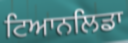
ਟਿਆਨਲਿਡਾ